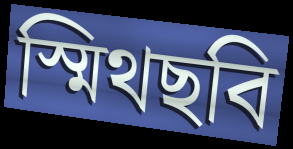
স্মিথছবি